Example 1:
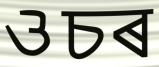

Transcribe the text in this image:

ওচৰ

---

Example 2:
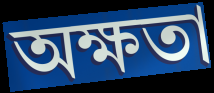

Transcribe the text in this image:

অক্ষতা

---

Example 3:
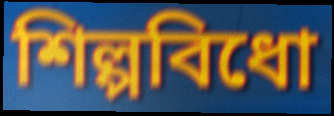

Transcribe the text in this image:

শিল্পবিধো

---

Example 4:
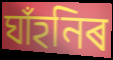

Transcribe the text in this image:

ঘাঁহনিৰ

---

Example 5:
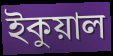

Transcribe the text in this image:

ইকুয়াল